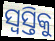
ସ୍ୱସ୍ତିକୁ